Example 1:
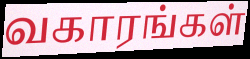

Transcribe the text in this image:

வகாரங்கள்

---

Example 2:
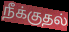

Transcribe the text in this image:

நீக்குதல்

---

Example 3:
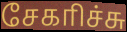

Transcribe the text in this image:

சேகரிச்சு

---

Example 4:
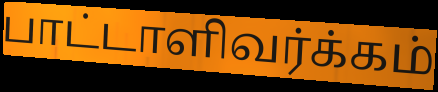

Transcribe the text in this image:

பாட்டாளிவர்க்கம்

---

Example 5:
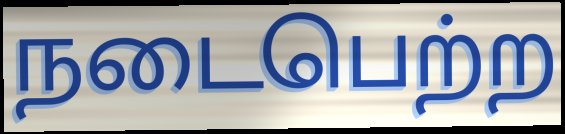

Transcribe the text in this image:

நடைபெற்ற